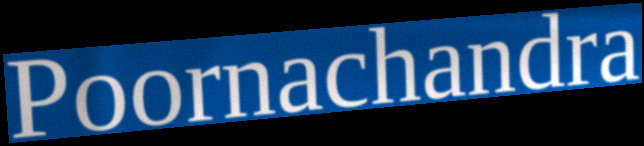
Poornachandra